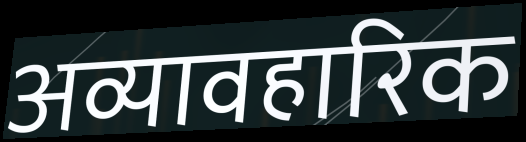
अव्यावहारिक